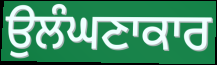
ਉਲੰਘਣਾਕਾਰ